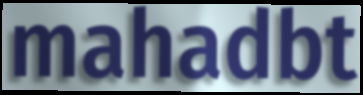
mahadbt